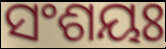
ସଂଶୟଃ